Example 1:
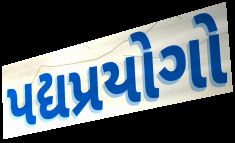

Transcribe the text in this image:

પદ્યપ્રયોગો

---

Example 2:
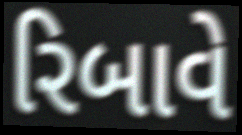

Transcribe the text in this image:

રિબાવે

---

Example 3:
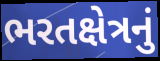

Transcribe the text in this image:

ભરતક્ષેત્રનું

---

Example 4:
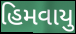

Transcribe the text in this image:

હિમવાયુ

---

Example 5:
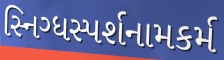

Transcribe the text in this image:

સ્નિગ્ધસ્પર્શનામકર્મ